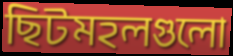
ছিটমহলগুলো